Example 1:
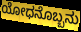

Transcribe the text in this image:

ಯೋಧನೊಬ್ಬನು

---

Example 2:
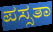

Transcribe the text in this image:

ಪಸ್ಸತಾ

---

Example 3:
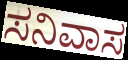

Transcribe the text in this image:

ಸನಿವಾಸ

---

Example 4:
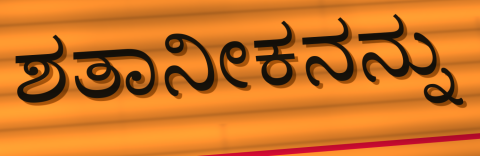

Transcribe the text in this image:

ಶತಾನೀಕನನ್ನು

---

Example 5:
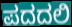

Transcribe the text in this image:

ಪದದಲಿ